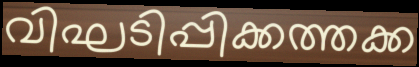
വിഘടിപ്പിക്കത്തക്ക